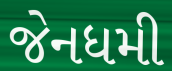
જેનધમી